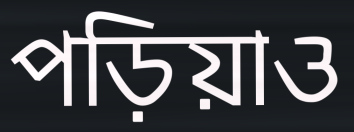
পড়িয়াও